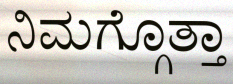
ನಿಮಗ್ಗೊತ್ತಾ